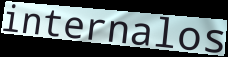
internalos